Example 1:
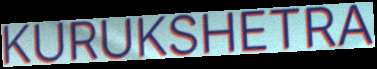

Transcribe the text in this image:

KURUKSHETRA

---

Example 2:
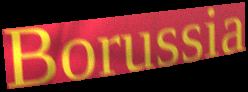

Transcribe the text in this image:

Borussia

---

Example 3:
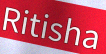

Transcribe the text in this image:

Ritisha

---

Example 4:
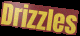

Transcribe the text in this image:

Drizzles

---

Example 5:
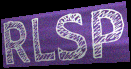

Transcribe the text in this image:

RLSP